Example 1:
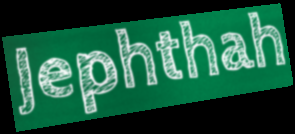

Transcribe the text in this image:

Jephthah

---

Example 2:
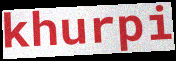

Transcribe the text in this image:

khurpi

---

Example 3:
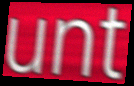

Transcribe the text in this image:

unt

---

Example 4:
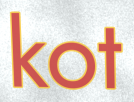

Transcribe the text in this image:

kot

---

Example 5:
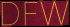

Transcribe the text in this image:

DFW